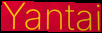
Yantai